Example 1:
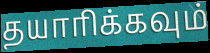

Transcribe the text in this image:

தயாரிக்கவும்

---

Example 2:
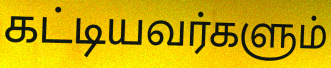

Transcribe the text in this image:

கட்டியவர்களும்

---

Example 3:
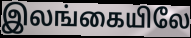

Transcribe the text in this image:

இலங்கையிலே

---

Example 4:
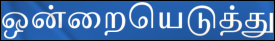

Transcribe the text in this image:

ஒன்றையெடுத்து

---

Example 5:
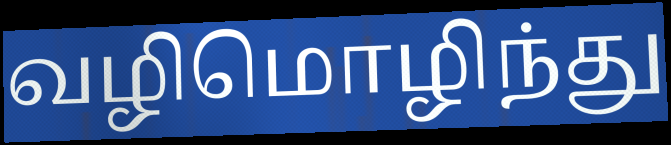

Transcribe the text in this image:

வழிமொழிந்து